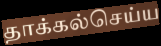
தாக்கல்செய்ய